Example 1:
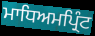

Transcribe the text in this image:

ਮਾਧਿਅਮਪ੍ਰਿੰਟ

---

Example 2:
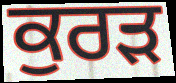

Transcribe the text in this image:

ਕੁਰੜ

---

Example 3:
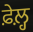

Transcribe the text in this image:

ਫ਼ੇਲ਼੍ਹ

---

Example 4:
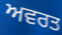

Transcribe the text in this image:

ਅਵਰਤ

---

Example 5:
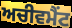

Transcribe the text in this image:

ਅਚੀਵਮੈਂਟ